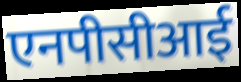
एनपीसीआई